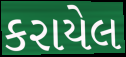
કરાયેલ